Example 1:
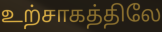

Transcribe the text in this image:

உற்சாகத்திலே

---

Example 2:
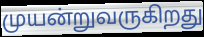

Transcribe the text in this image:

முயன்றுவருகிறது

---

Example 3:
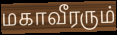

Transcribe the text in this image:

மகாவீரரும்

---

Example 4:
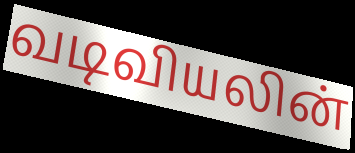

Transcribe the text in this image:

வடிவியலின்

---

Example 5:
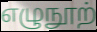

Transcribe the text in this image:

எழுநூற்